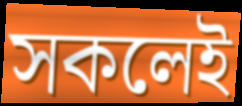
সকলেই